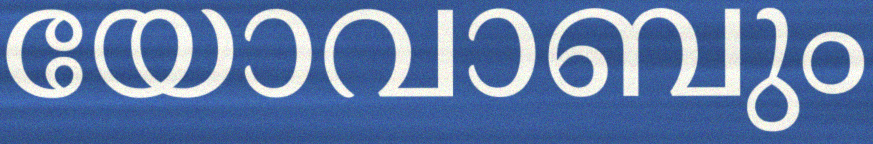
യോവാബും